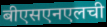
बीएसएनएलची